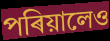
পৰিয়ালেও